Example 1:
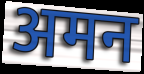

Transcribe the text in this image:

अमन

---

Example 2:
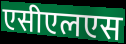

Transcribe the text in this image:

एसीएलएस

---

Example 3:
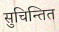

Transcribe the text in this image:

सुचिन्तित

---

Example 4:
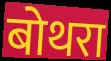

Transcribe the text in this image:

बोथरा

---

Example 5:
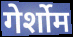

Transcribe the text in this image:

गेर्शोम